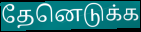
தேனெடுக்க